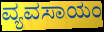
ವ್ಯವಸಾಯಂ